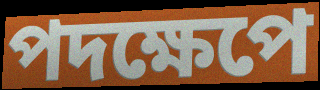
পদক্ষেপে